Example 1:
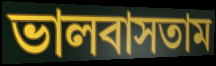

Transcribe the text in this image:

ভালবাসতাম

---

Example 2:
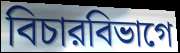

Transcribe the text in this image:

বিচারবিভাগে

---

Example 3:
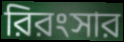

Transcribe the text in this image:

রিরংসার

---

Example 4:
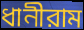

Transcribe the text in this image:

ধানীরাম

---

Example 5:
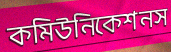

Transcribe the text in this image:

কমিউনিকেশনস